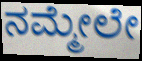
ನಮ್ಮೇಲೇ